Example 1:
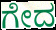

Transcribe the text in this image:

ಗೇದ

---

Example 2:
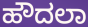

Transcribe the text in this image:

ಹೌದಲಾ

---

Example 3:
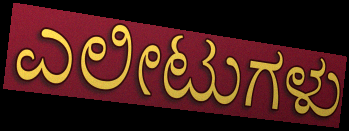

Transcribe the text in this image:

ಎಲೀಟುಗಳು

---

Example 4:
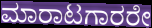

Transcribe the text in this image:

ಮಾರಾಟಗಾರರೇ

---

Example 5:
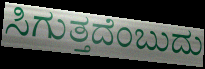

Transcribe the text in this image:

ಸಿಗುತ್ತದೆಂಬುದು